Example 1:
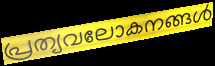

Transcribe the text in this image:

പ്രത്യവലോകനങ്ങൾ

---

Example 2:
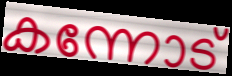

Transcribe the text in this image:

കന്നോട്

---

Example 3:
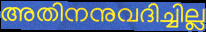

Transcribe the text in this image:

അതിനനുവദിച്ചില്ല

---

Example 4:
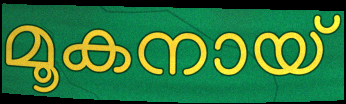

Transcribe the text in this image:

മൂകനായ്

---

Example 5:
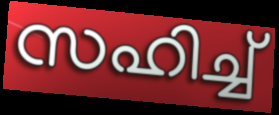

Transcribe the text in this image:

സഹിച്ച്